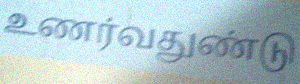
உணர்வதுண்டு